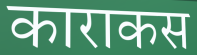
काराकस